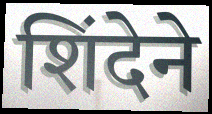
शिंदेने